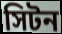
সিটন